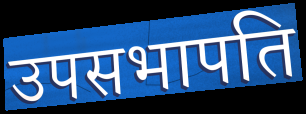
उपसभापति